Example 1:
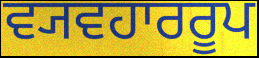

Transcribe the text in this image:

ਵ੍ਯਵਹਾਰਰੂਪ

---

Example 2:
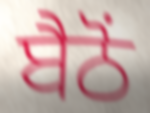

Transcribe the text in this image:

ਬੈਠੋਂ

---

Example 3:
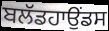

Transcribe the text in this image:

ਬਲੱਡਹਾਉਂਡਸ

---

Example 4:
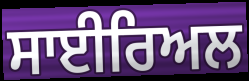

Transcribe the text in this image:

ਸਾਈਰਿਅਲ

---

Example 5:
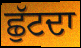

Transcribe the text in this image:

ਛੁੱਟਦਾ